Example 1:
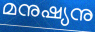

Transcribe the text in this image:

മനുഷ്യനു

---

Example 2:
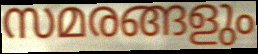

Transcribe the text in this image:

സമരങ്ങളും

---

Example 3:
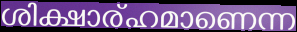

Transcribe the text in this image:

ശിക്ഷാര്ഹമാണെന്ന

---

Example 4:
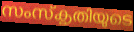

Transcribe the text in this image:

സംസ്‌കൃതിയുടെ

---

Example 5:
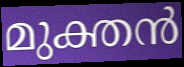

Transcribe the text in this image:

മുക്തൻ